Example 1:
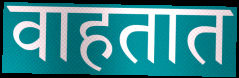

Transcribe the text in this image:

वाहतात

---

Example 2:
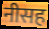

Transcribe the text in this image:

नीसह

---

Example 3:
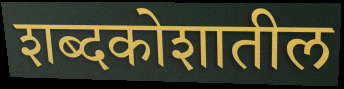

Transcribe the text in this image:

शब्दकोशातील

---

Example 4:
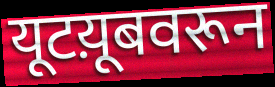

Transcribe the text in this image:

यूटय़ूबवरून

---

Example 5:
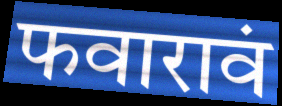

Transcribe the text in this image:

फवारावं